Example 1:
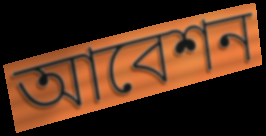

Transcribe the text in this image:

আবেশন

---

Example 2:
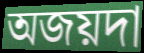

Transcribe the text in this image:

অজয়দা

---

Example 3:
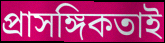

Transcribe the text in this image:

প্রাসঙ্গিকতাই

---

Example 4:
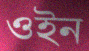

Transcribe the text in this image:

ওইন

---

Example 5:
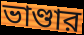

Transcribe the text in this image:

ভাণ্ডার